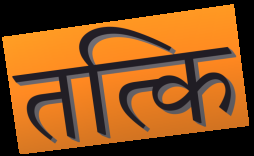
तत्कि